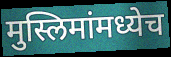
मुस्लिमांमध्येच